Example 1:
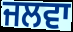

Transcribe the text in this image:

ਜਲਵਾ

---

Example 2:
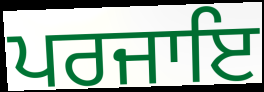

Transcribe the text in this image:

ਪਰਜਾਇ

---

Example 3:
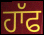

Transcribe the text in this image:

ਹਾੱਫ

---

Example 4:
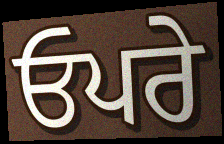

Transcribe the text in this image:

ਓਪਰੇ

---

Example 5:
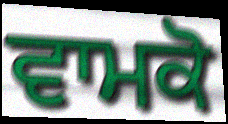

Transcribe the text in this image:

ਵਾਮਕੋ